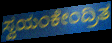
ಸ್ವಯಂಕೇಂದ್ರಿತ